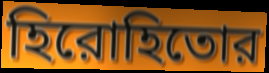
হিরোহিতোর